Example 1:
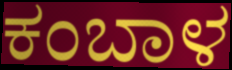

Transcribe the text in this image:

ಕಂಬಾಳ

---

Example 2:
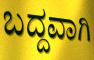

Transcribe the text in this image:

ಬದ್ದವಾಗಿ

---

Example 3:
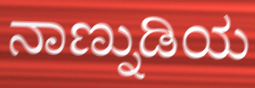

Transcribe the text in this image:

ನಾಣ್ನುಡಿಯ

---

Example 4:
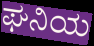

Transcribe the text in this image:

ಘನಿಯ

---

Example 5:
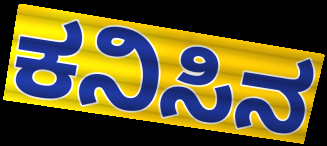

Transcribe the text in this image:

ಕನಿಸಿನ